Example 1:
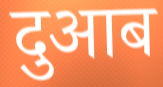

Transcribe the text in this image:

दुआब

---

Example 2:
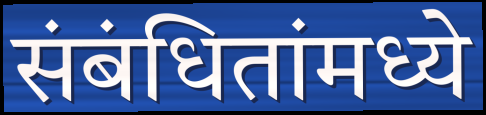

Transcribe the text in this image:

संबंधितांमध्ये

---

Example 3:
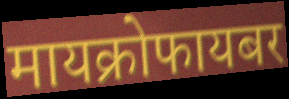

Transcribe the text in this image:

मायक्रोफायबर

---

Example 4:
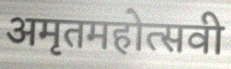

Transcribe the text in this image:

अमृतमहोत्सवी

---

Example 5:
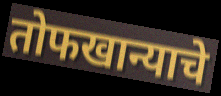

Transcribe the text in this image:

तोफखान्याचे